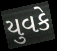
યુવકે